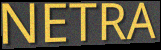
NETRA